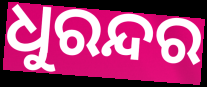
ଧୁରନ୍ଦର